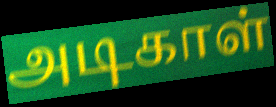
அடிகாள்